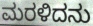
ಮರಳಿದನು